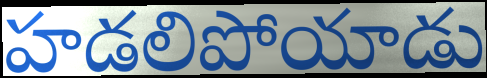
హడలిపోయాడు